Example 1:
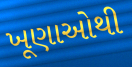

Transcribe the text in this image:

ખૂણાઓથી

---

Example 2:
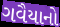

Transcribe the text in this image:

ગવૈયાનો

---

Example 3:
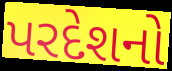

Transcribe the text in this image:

પરદેશનો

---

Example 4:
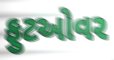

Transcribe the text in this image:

ફુટઓવર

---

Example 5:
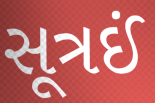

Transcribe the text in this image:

સૂત્રઈં